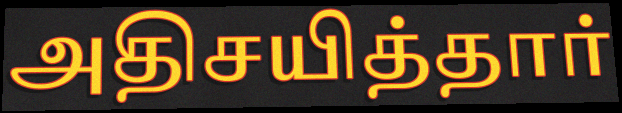
அதிசயித்தார்